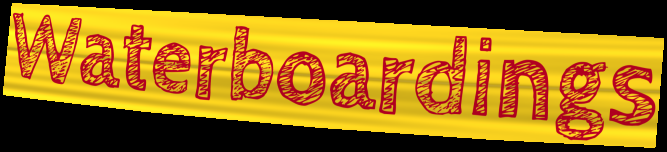
Waterboardings